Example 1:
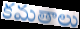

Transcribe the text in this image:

కమతాలు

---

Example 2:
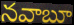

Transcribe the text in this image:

నవాబూ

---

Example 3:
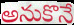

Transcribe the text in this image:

అనుకొనే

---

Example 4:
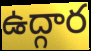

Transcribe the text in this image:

ఉద్గార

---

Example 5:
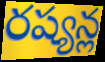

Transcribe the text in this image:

రష్యన్ల